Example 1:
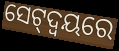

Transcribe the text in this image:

ସେଟ୍‌ଦ୍ଵୟରେ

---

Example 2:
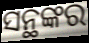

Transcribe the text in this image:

ସନ୍ଥଙ୍କର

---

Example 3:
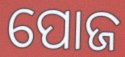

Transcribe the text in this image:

ପୋଜ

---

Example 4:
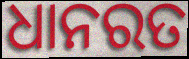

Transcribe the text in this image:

ଧାନରତ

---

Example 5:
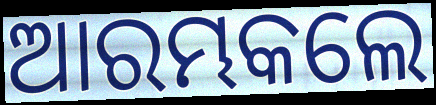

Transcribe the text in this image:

ଆରମ୍ଭକଲେ